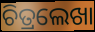
ଚିତ୍ରଲେଖା